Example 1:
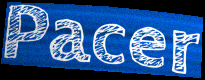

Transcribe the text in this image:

Pacer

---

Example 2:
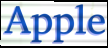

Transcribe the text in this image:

Apple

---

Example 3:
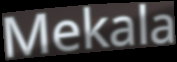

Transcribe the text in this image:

Mekala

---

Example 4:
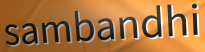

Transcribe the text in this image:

sambandhi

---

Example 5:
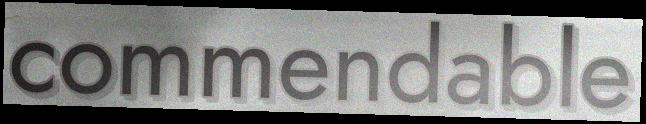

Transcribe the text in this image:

commendable